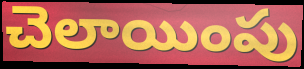
చెలాయింపు